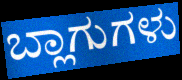
ಬ್ಲಾಗುಗಳು